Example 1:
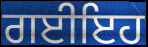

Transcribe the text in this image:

ਗਈਇਹ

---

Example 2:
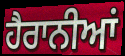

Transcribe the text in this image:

ਹੈਰਾਨੀਆਂ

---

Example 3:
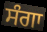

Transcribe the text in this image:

ਸੰਗਾ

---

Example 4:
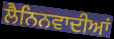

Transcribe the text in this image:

ਲੈਨਿਨਵਾਦੀਆਂ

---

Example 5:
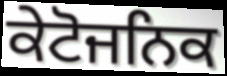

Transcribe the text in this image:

ਕੇਟੋਜਨਿਕ